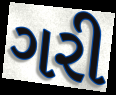
ગરી